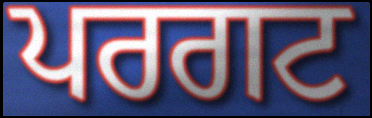
ਪਰਗਟ